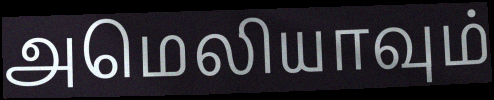
அமெலியாவும்